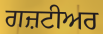
ਗਜ਼ਟੀਅਰ